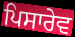
ਪਿਸਾਰੇਵ